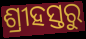
ଶ୍ରୀହସ୍ତରୁ